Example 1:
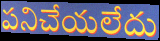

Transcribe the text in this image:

పనిచేయలేదు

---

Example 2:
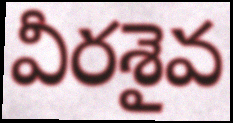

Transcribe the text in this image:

వీరశైవ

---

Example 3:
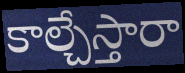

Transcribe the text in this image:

కాల్చేస్తారా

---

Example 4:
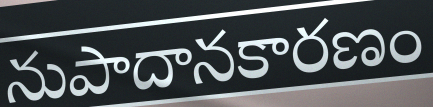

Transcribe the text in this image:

నుపాదానకారణం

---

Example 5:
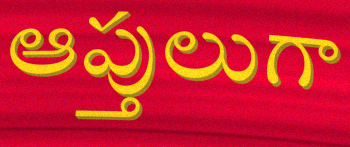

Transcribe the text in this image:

ఆప్తులుగా